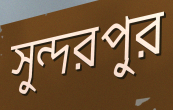
সুন্দরপুর